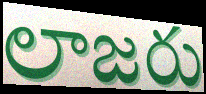
లాజరు